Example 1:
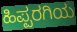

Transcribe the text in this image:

ಹಿಪ್ಪರಗಿಯ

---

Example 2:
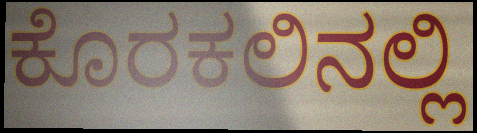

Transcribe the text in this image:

ಕೊರಕಲಿನಲ್ಲಿ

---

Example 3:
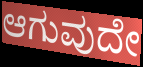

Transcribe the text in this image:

ಆಗುವುದೇ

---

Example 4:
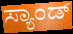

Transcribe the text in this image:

ಸ್ಯಾಂಡ್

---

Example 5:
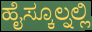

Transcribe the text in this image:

ಹೈಸ್ಕೂಲ್ನಲ್ಲಿ